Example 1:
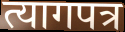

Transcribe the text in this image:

त्‍यागपत्र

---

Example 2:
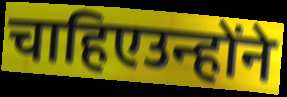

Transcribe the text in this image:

चाहिएउन्होंने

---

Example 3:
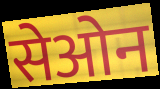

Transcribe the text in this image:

सेओन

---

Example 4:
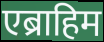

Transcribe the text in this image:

एब्राहिम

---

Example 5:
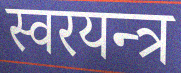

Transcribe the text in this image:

स्वरयन्त्र